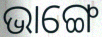
ଭାଙ୍ଗେ